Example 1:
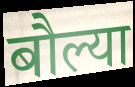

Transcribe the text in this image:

बौल्या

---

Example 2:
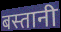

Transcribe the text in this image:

बस्तानी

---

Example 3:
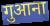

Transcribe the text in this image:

गुआना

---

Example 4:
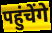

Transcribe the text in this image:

पहुंचेंगे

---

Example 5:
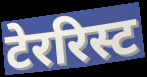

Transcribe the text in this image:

टेररिस्ट